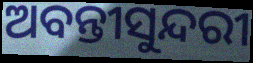
ଅବନ୍ତୀସୁନ୍ଦରୀ